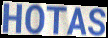
HOTAS